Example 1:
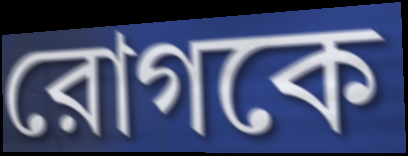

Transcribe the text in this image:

রোগকে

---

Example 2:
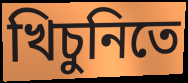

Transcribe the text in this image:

খিচুনিতে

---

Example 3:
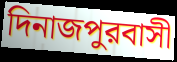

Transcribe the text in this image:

দিনাজপুরবাসী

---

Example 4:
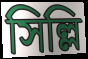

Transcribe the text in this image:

সিল্লি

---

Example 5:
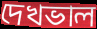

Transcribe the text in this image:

দেখভাল